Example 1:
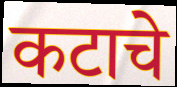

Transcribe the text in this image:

कटाचे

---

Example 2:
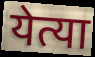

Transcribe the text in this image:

येत्या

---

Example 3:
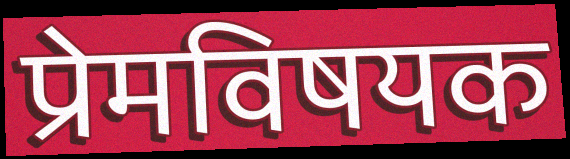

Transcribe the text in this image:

प्रेमविषयक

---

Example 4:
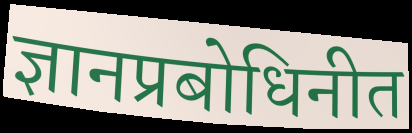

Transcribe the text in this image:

ज्ञानप्रबोधिनीत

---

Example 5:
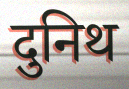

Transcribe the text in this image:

दुनिथ